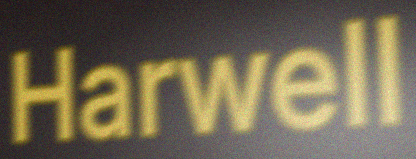
Harwell